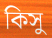
কিসু